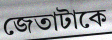
জেতাটাকে